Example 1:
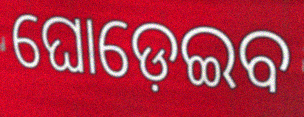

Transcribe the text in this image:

ଘୋଡ଼େଇବ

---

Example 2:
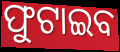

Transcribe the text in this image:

ଫୁଟାଇବ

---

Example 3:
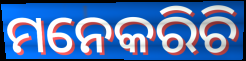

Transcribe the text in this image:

ମନେକରିଚି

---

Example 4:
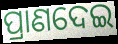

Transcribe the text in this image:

ପ୍ରାଣଦେଇ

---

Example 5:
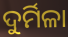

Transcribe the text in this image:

ଦୁର୍ମିଳା